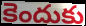
కెందుకు